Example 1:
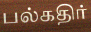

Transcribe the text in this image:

பல்கதிர்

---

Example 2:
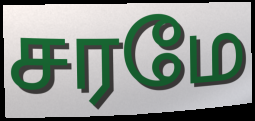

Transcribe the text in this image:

சரமே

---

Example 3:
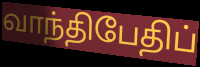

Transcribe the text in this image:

வாந்திபேதிப்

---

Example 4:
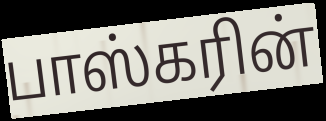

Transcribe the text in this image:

பாஸ்கரின்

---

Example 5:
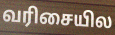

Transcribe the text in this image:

வரிசையில